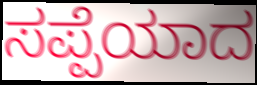
ಸಪ್ಪೆಯಾದ